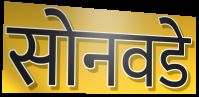
सोनवडे